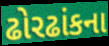
ઢોરઢાંકના